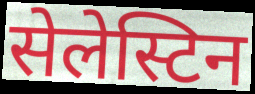
सेलेस्टिन